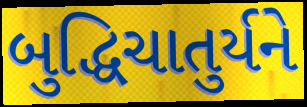
બુદ્ધિચાતુર્યને